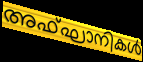
അഫ്ഘാനികൾ